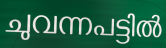
ചുവന്നപട്ടിൽ